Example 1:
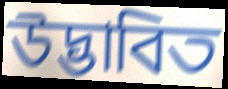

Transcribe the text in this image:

উদ্ভাবিত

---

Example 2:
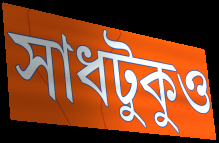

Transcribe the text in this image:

সাধটুকুও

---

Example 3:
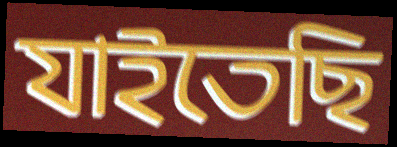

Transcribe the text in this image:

যাইতেছি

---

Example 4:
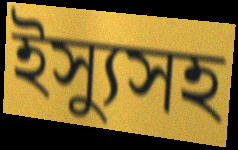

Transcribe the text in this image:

ইস্যুসহ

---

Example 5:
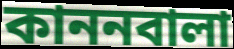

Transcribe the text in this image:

কাননবালা